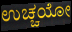
ಉಚ್ಚಯೋ